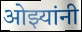
ओझ्यांनी